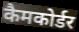
कैमकोर्डर